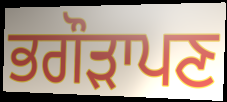
ਭਗੌੜਾਪਣ